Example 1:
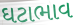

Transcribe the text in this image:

ઘટાભાવ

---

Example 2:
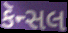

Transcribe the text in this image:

કૅન્સલ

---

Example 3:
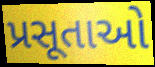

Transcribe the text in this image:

પ્રસૂતાઓ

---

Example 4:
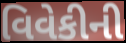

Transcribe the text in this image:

વિવેકીની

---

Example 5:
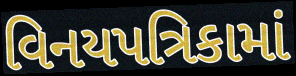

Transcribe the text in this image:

વિનયપત્રિકામાં